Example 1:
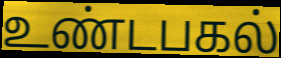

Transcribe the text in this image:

உண்டபகல்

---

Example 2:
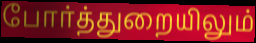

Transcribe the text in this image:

போர்த்துறையிலும்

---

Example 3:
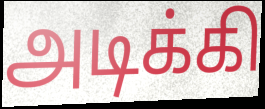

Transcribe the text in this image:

அடிக்கி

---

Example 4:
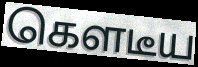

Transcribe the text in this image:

கௌடீய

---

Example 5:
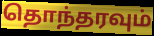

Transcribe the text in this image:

தொந்தரவும்